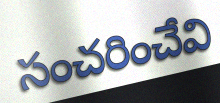
సంచరించేవి